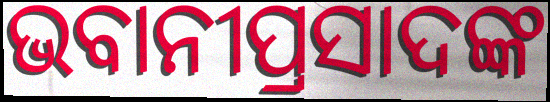
ଭବାନୀପ୍ରସାଦଙ୍କ